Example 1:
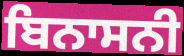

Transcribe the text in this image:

ਬਿਨਾਸਨੀ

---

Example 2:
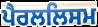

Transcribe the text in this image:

ਪੈਰਲਲਿਸਮ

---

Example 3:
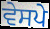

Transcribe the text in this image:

ਵੇਸਪੇ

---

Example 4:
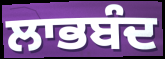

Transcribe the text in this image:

ਲਾਭਬੰਦ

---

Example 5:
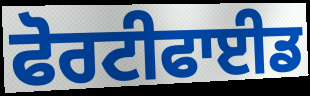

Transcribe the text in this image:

ਫੋਰਟੀਫਾਈਡ